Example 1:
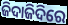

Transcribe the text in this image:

ଜିଦାଜିଦିରେ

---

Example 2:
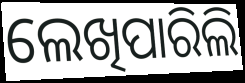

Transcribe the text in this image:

ଲେଖିପାରିଲି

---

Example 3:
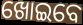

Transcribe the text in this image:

ଖୋଇବେ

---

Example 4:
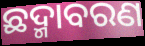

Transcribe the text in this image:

ଛଦ୍ମାବରଣ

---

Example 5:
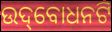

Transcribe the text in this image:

ଉଦ୍‌ବୋଧନଟି